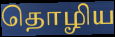
தொழிய